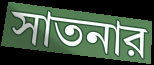
সাতনার